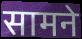
सामने